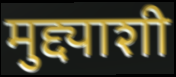
मुद्द्याशी